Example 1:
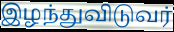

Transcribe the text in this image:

இழந்துவிடுவர்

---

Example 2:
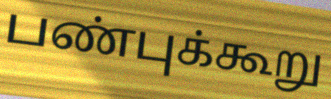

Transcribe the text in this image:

பண்புக்கூறு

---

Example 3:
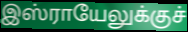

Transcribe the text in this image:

இஸ்ராயேலுக்குச்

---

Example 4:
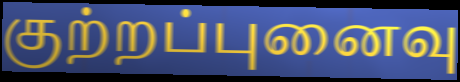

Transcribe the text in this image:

குற்றப்புனைவு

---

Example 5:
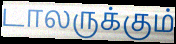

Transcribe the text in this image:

டாலருக்கும்